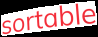
sortable